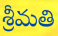
శ్రీమతి